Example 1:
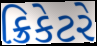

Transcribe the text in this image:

ક્રિકેટરે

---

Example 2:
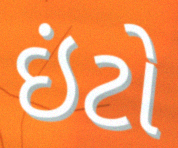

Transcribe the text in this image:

ઇંટો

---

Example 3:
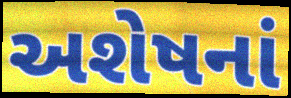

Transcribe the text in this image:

અશેષનાં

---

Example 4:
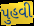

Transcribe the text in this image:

પુહવી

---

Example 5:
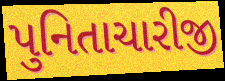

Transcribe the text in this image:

પુનિતાચારીજી